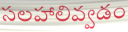
సలహాలివ్వడం